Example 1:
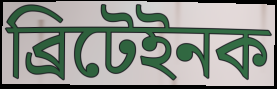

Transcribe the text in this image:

ব্ৰিটেইনক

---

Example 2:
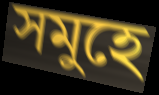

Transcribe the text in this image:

সমুহে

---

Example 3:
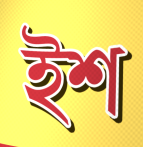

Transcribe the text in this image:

ইশ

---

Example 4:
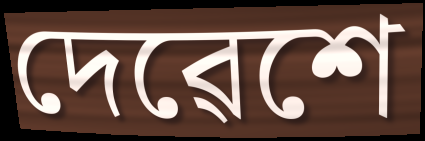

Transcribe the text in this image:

দেৱেশে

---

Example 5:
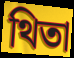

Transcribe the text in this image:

থিতা